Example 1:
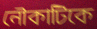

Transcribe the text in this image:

নৌকাটিকে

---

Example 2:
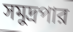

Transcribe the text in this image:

সমুদ্রপার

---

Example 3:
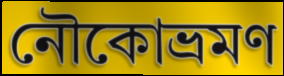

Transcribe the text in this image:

নৌকোভ্রমণ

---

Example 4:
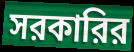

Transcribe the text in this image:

সরকারির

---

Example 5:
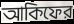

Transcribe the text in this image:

আকিফের